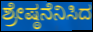
ಶ್ರೇಷ್ಠನೆನಿಸಿದ